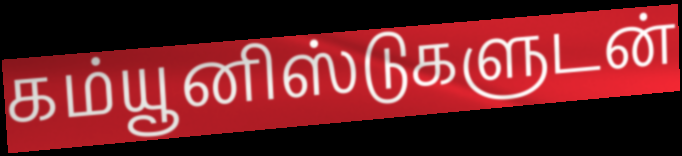
கம்யூனிஸ்டுகளுடன்